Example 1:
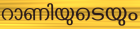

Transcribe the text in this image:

റാണിയുടെയും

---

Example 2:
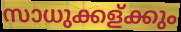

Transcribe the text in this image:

സാധുക്കള്ക്കും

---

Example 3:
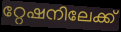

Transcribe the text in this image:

റ്റേഷനിലേക്ക്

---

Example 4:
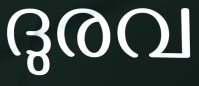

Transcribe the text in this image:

ദുരവ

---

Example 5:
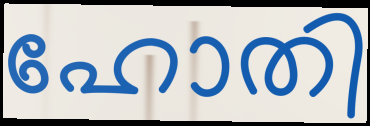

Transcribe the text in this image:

ഹോതി